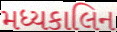
મધ્યકાલિન